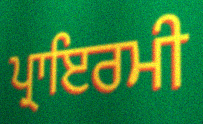
ਪ੍ਰਾਇਰਮੀ